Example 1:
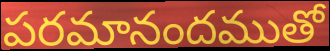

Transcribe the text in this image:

పరమానందముతో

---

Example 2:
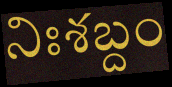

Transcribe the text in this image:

నిఃశబ్దం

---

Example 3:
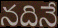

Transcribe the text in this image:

నదినే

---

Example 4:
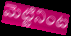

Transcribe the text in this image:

మెట్టినింట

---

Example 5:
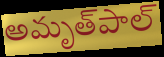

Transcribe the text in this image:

అమృత్‌పాల్